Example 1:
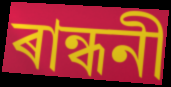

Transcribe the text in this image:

ৰান্ধনী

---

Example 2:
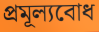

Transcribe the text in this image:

প্ৰমূল্যবোধ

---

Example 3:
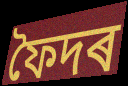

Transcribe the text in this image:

ফৈদৰ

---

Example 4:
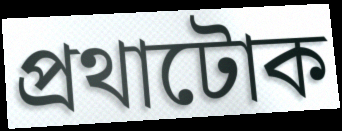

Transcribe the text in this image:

প্ৰথাটোক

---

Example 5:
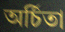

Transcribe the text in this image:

অৰ্চিতা